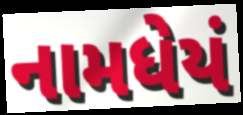
નામધેયં